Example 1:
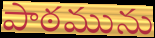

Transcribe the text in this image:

పాఠమును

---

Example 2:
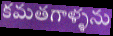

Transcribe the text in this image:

కమతగాళ్ళను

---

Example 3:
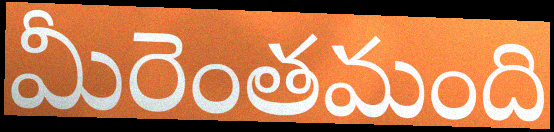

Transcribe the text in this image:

మీరెంతమంది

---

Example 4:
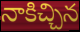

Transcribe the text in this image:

నాకిచ్చిన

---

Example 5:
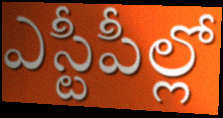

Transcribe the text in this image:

ఎస్టీపీల్లో